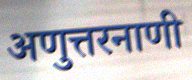
अणुत्तरनाणी